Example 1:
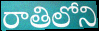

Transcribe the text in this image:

రాతిలోని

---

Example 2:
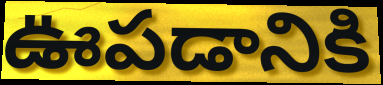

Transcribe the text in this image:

ఊపడానికి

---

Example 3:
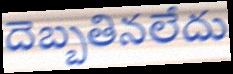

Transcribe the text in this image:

దెబ్బతినలేదు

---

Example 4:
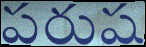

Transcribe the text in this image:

పరుష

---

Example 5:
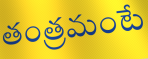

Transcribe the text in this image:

తంత్రమంటే